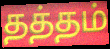
தத்தம்